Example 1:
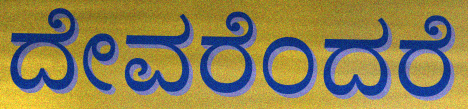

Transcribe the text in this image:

ದೇವರೆಂದರೆ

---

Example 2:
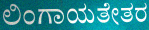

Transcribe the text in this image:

ಲಿಂಗಾಯತೇತರ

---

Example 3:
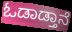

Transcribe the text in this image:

ಓಡಾಡ್ತಾನೆ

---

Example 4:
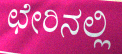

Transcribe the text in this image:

ಛೇರಿನಲ್ಲಿ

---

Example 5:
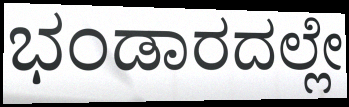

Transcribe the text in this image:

ಭಂಡಾರದಲ್ಲೇ